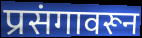
प्रसंगावरून